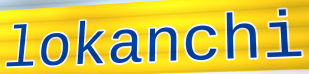
lokanchi